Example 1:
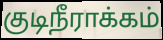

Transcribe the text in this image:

குடிநீராக்கம்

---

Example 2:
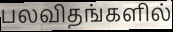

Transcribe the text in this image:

பலவிதங்களில்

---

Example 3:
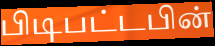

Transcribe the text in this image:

பிடிபட்டபின்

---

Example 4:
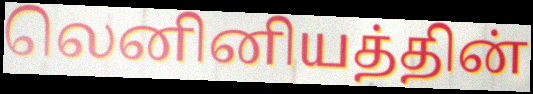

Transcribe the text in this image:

லெனினியத்தின்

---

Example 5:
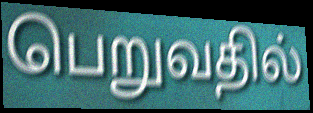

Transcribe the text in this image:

பெறுவதில்